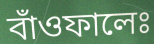
বাঁওফালেঃ